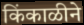
किंकाळीने